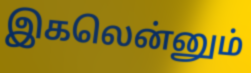
இகலென்னும்